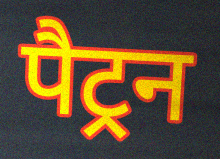
पैट्रन